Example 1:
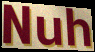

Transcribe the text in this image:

Nuh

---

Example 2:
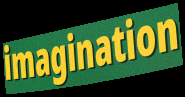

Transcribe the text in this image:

imagination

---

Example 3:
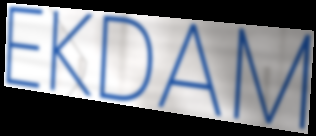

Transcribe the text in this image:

EKDAM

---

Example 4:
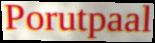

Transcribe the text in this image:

Porutpaal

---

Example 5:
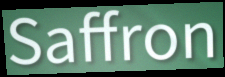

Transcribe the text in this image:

Saffron